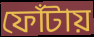
ফোঁটায়